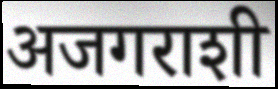
अजगराशी